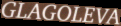
GLAGOLEVA